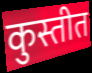
कुस्तीत